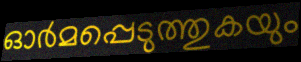
ഓർമപ്പെടുത്തുകയും